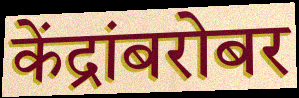
केंद्रांबरोबर